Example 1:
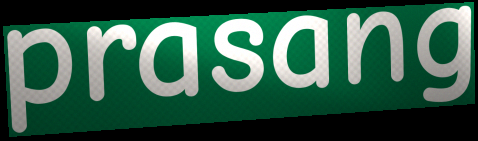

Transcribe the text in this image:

prasang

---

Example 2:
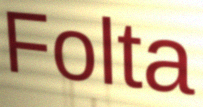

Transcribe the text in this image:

Folta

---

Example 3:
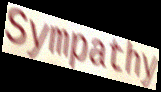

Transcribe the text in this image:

Sympathy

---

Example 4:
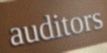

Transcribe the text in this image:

auditors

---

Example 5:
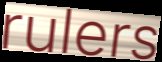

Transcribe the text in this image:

rulers